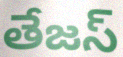
తేజస్